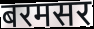
बरमसर